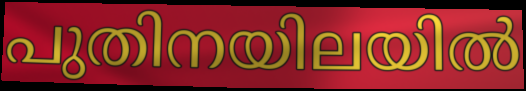
പുതിനയിലയിൽ